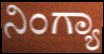
ನಿಂಗ್ಯಾ